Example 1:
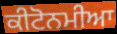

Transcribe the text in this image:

ਕੀਟੋਨਮੀਆ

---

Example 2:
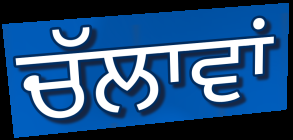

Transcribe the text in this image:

ਚੱਲਾਵਾਂ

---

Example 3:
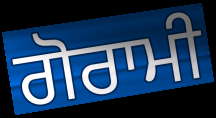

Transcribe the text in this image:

ਗੋਰਾਮੀ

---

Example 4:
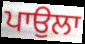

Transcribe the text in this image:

ਪਾਉਲਾ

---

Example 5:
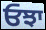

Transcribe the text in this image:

ਓਝਾ